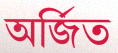
অর্জিত